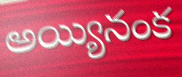
అయ్యినంక